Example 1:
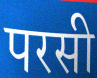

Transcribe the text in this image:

परसी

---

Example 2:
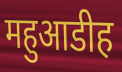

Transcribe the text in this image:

महुआडीह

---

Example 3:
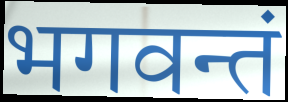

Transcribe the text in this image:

भगवन्तं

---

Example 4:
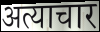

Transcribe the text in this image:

अत्याचार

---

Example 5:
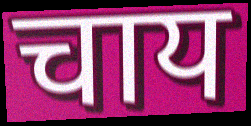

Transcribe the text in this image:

चाय